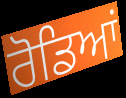
ਰੋਡਿਆਂ